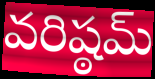
వరిష్ఠమ్